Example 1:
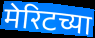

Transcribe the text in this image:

मेरिटच्या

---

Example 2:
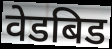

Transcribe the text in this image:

वेडबिड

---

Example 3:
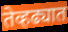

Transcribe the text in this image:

तेव्हढ्यात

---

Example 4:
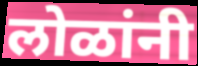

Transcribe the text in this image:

लोळांनी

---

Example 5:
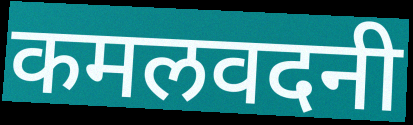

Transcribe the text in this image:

कमलवदनी